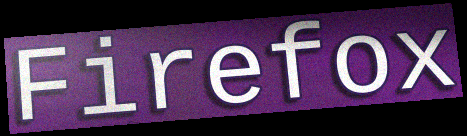
Firefox